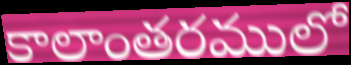
కాలాంతరములో